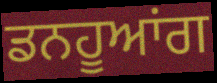
ਡਨਹੂਆਂਗ